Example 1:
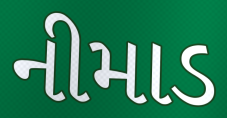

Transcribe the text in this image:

નીમાડ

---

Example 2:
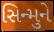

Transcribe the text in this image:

સિન્મુને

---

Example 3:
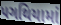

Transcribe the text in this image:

પગથિયામાં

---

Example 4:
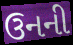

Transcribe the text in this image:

ઉનની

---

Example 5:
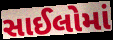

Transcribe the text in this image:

સાઈલોમાં